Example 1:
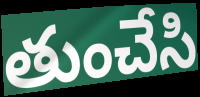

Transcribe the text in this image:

తుంచేసి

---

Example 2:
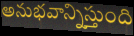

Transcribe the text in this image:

అనుభవాన్నిస్తుంది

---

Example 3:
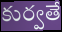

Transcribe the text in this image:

కుర్వతే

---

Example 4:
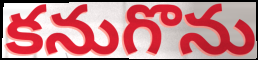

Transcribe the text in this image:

కనుగొను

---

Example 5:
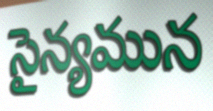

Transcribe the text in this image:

సైన్యమున